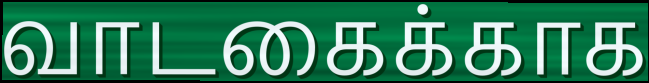
வாடகைக்காக